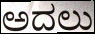
ಅದಲು